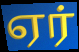
ஏர்